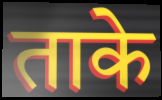
ताके